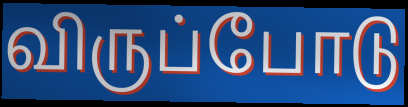
விருப்போடு